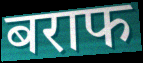
बराफ